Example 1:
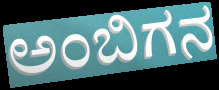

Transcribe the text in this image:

ಅಂಬಿಗನ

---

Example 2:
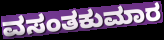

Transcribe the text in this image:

ವಸಂತಕುಮಾರ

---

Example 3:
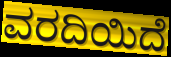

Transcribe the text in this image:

ವರದಿಯಿದೆ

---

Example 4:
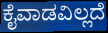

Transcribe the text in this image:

ಕೈವಾಡವಿಲ್ಲದೆ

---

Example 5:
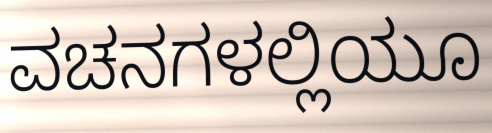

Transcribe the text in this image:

ವಚನಗಳಲ್ಲಿಯೂ